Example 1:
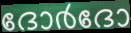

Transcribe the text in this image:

ദോർദോ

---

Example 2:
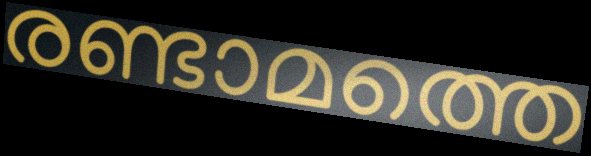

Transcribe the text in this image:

രണ്ടാമത്തെ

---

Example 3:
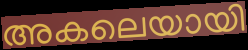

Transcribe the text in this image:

അകലെയായി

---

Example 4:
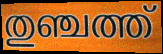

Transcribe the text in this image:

തുഞ്ചത്ത്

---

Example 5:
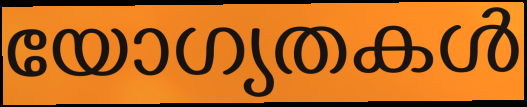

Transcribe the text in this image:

യോഗ്യതകൾ